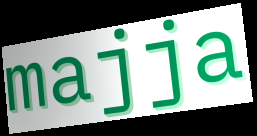
majja